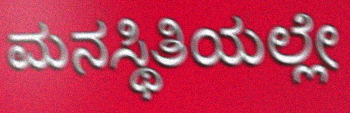
ಮನಸ್ಥಿತಿಯಲ್ಲೇ